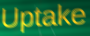
Uptake